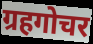
ग्रहगोचर